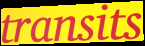
transits